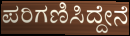
ಪರಿಗಣಿಸಿದ್ದೇನೆ